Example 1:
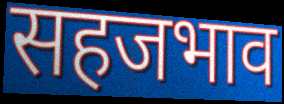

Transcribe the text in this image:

सहजभाव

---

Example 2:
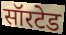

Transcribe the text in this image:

सॉरटेड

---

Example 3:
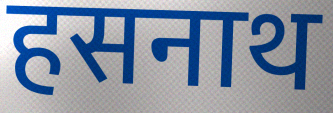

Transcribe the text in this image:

हसनाथ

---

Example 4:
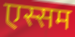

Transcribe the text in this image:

एस्सम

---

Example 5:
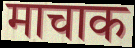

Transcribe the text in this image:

माचाक